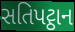
સતિપટ્ઠાન